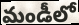
మండీలో